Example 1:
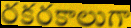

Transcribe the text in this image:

రకరకాలుగా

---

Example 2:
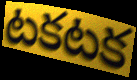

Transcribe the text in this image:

టకటక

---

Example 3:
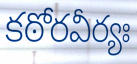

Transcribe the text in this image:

కఠోరవీర్యః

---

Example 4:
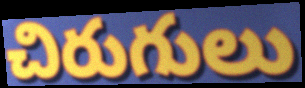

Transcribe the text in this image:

చిరుగులు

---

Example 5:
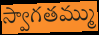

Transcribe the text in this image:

స్వాగతమ్ము